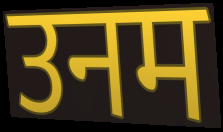
उनम